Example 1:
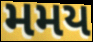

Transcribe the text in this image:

મમય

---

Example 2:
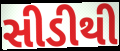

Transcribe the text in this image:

સીડીથી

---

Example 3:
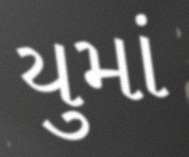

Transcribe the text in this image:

યુમાં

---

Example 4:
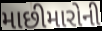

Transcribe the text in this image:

માછીમારોની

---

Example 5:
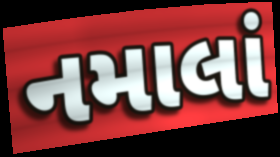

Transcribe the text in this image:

નમાલાં